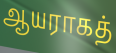
ஆயராகத்